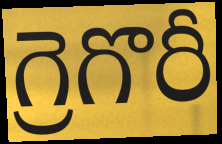
గ్రెగొరీ